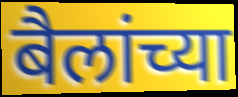
बैलांच्या